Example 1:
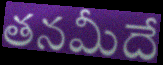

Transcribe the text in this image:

తనమీదే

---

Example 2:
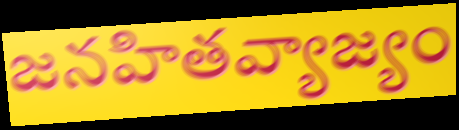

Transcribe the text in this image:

జనహితవ్యాజ్యం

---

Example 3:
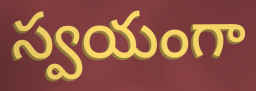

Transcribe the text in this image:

స్వయంగా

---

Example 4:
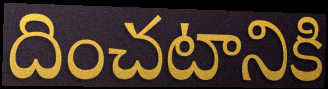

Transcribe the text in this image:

దించటానికి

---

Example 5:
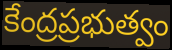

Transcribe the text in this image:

కేంద్రప్రభుత్వం